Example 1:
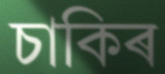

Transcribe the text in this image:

চাকিৰ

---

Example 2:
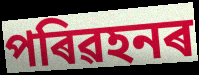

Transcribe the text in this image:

পৰিৱহনৰ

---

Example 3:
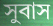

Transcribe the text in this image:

সুবাস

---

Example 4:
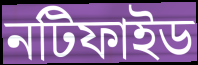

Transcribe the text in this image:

নটিফাইড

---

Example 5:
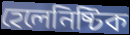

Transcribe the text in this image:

হেলেনিষ্টিক